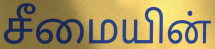
சீமையின்